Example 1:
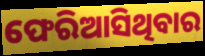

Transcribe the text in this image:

ଫେରିଆସିଥିବାର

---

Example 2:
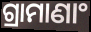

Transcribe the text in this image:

ଗ୍ରାମାଣାଂ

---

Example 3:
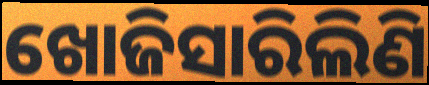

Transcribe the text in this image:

ଖୋଜିସାରିଲିଣି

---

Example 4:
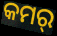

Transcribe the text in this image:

କମର୍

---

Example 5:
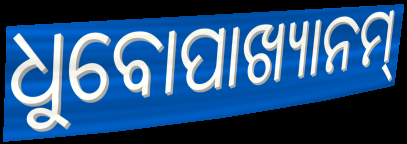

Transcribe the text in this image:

ଧୁବୋପାଖ୍ୟାନମ୍